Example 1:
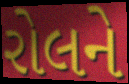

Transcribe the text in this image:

રોલને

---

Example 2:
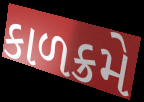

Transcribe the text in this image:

કાળક્રમે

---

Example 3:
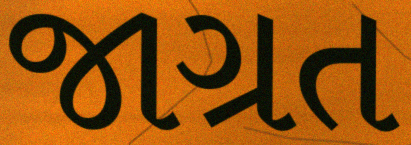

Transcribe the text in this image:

જાગ્રત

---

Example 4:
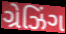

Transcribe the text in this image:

ગ્રેઝિંગ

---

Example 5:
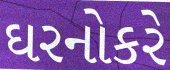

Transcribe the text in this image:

ઘરનોકરે